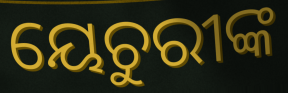
ୟେଚୁରୀଙ୍କ